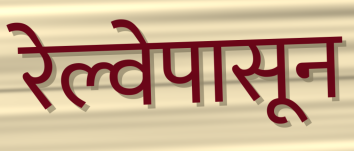
रेल्वेपासून